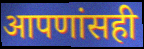
आपणांसही